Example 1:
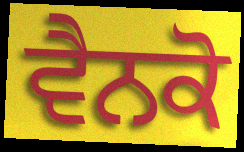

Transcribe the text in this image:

ਵੈਨਕੋ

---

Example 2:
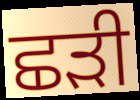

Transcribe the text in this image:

ਛੜੀ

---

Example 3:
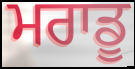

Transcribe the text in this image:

ਮਰਾਡੂ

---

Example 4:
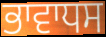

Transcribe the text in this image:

ਭਾਵਾਧਸ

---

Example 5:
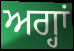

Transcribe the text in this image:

ਅਗ੍ਹਾਂ